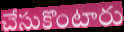
చేసుకొంటారు